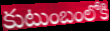
కుటుంబంలోకి